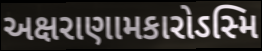
અક્ષરાણામકારોઽસ્મિ